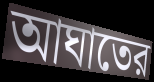
আঘাতের